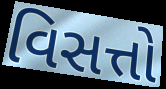
વિસત્તો